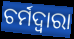
ଚର୍ମଦ୍ଵାରା